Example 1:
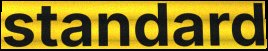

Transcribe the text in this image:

standard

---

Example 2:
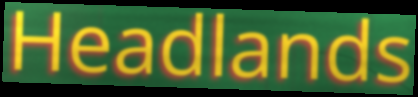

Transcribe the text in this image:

Headlands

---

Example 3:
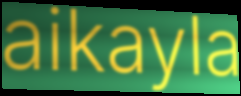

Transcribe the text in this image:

aikayla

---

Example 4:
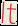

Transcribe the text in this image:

It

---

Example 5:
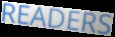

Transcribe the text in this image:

READERS